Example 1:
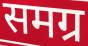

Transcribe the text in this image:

समग्र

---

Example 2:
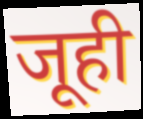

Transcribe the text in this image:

जूही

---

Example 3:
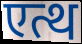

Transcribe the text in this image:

एत्थ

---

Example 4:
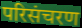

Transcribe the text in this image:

परिसंचरण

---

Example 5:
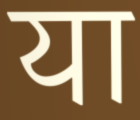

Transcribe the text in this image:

या